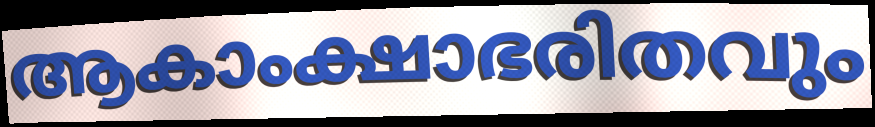
ആകാംക്ഷാഭരിതവും